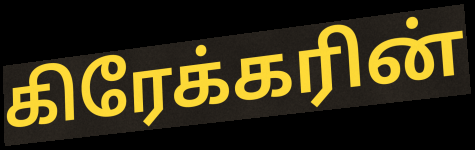
கிரேக்கரின்